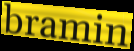
bramin